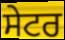
ਸੇਟਰ